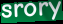
srory